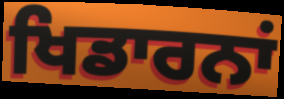
ਖਿਡਾਰਨਾਂ